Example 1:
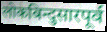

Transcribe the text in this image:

लोकबिन्दुसारपूर्व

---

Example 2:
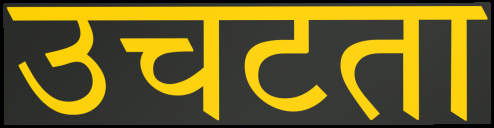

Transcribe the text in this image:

उचटता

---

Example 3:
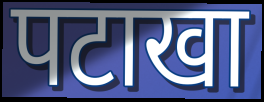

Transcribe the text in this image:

पटाखा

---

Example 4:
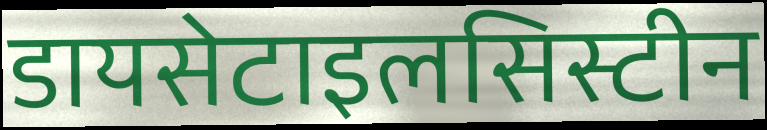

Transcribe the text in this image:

डायसेटाइलसिस्टीन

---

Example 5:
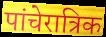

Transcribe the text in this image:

पांचेरात्रिक